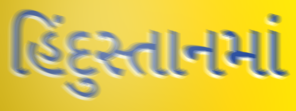
હિંદુસ્તાનમાં